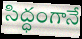
సిద్ధంగానే